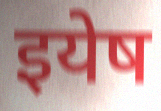
इयेष